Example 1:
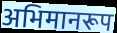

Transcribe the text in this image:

अभिमानरूप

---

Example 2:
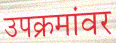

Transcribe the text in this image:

उपक्रमांवर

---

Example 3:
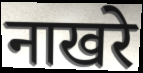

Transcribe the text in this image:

नाखरे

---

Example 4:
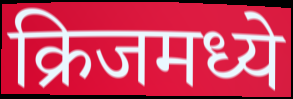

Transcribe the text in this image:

क्रिजमध्ये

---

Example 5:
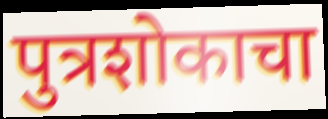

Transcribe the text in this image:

पुत्रशोकाचा